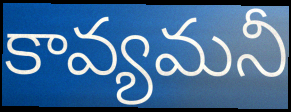
కావ్యమనీ